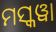
ମସ୍କୱା